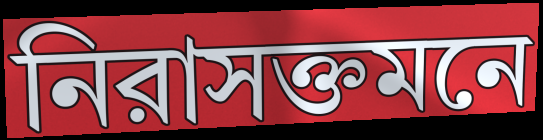
নিরাসক্তমনে